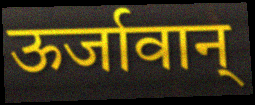
ऊर्जावान्